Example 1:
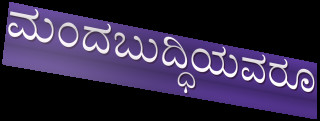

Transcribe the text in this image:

ಮಂದಬುದ್ಧಿಯವರೂ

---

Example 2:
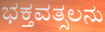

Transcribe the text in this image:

ಭಕ್ತವತ್ಸಲನು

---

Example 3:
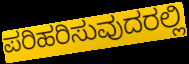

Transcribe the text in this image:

ಪರಿಹರಿಸುವುದರಲ್ಲಿ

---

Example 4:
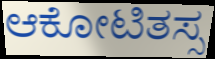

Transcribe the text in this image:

ಆಕೋಟಿತಸ್ಸ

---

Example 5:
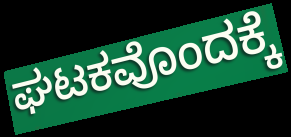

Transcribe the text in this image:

ಘಟಕವೊಂದಕ್ಕೆ